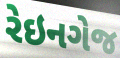
રેઇનગેજ